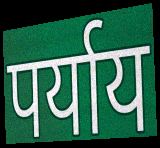
पर्याय